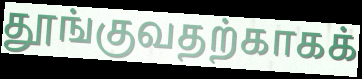
தூங்குவதற்காகக்